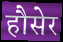
हौसेर